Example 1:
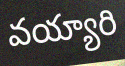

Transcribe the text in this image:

వయ్యారి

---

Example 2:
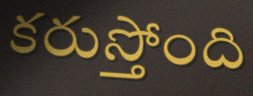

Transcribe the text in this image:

కరుస్తోంది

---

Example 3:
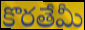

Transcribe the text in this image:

కొరతేమీ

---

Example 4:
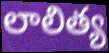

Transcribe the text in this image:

లాలిత్య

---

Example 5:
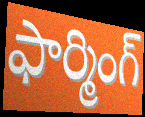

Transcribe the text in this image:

ఫార్మింగ్